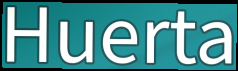
Huerta